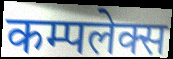
कम्पलेक्स